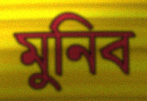
মুনিব